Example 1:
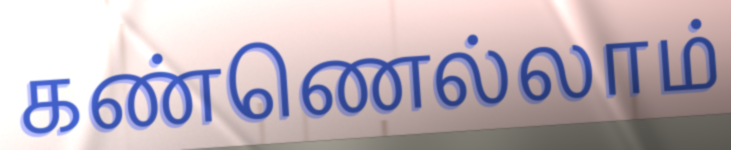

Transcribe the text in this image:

கண்ணெல்லாம்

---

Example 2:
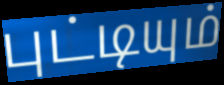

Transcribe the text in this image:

புட்டியும்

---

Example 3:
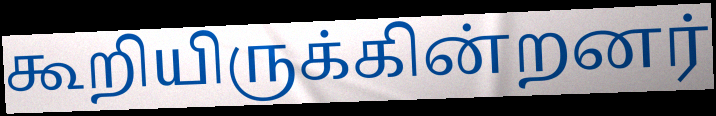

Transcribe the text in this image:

கூறியிருக்கின்றனர்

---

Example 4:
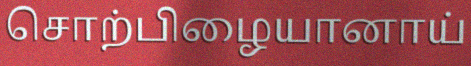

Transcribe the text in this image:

சொற்பிழையானாய்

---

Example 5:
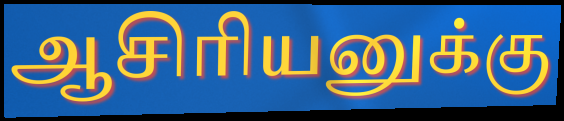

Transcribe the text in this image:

ஆசிரியனுக்கு